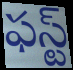
ఫస్ట్